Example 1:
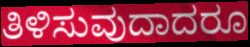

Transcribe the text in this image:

ತಿಳಿಸುವುದಾದರೂ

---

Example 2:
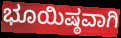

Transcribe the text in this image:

ಭೂಯಿಷ್ಠವಾಗಿ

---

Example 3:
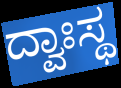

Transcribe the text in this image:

ದ್ವಾಃಸ್ಥ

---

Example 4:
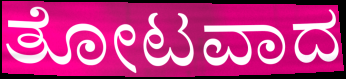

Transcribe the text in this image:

ತೋಟವಾದ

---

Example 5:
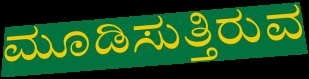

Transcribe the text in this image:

ಮೂಡಿಸುತ್ತಿರುವ